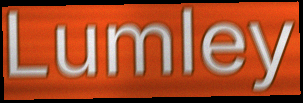
Lumley